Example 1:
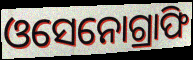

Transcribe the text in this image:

ଓସେନୋଗ୍ରାଫି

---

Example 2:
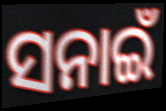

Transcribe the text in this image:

ସନାଇଁ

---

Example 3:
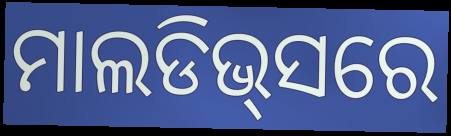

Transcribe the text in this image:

ମାଲଡିଭ୍‌ସରେ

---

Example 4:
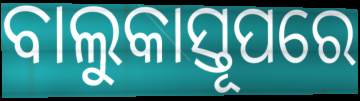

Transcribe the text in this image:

ବାଲୁକାସ୍ତୂପରେ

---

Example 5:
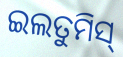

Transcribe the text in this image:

ଇଲତୁମିସ୍